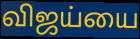
விஜய்யை